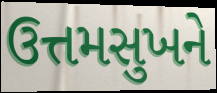
ઉત્તમસુખને